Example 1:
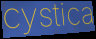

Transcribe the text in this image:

cystica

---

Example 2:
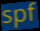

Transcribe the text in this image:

spf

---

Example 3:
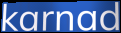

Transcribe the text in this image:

karnad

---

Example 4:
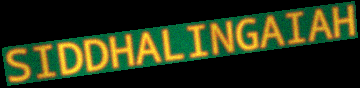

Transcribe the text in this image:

SIDDHALINGAIAH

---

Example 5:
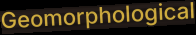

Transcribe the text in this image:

Geomorphological